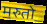
म॒रुतो॒